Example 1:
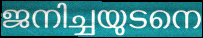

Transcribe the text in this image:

ജനിച്ചയുടനെ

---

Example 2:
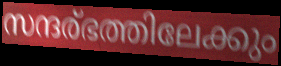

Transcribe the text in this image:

സന്ദര്ഭത്തിലേക്കും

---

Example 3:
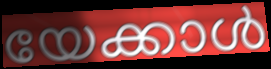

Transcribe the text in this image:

യേക്കാൾ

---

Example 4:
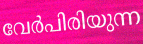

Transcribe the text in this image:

വേർപിരിയുന്ന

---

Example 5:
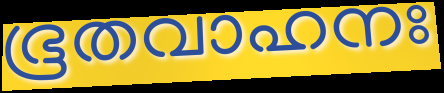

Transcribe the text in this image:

ഭൂതവാഹനഃ